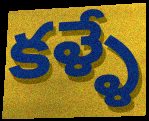
కళ్ళే